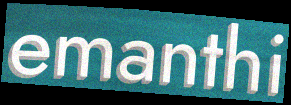
emanthi